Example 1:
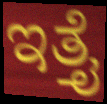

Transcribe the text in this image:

ಇತ್ತೈ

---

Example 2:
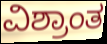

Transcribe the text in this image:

ವಿಶ್ರಾಂತ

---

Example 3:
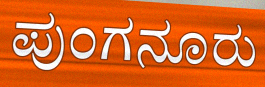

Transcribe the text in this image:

ಪುಂಗನೂರು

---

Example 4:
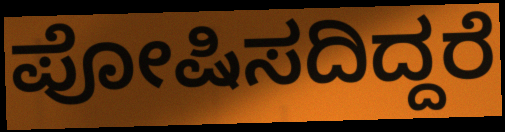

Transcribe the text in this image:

ಪೋಷಿಸದಿದ್ದರೆ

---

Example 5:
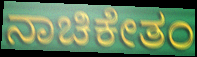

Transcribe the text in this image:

ನಾಚಿಕೇತಂ